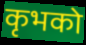
कृभको